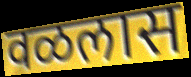
वळलास